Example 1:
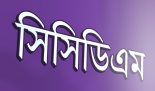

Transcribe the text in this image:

সিসিডিএম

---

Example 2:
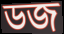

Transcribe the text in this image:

ডজ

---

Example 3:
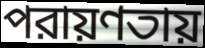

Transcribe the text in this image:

পরায়ণতায়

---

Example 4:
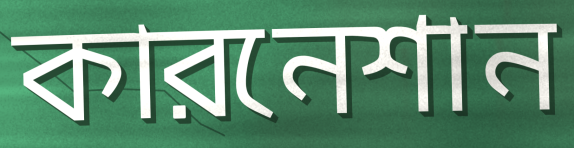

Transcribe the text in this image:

কারনেশান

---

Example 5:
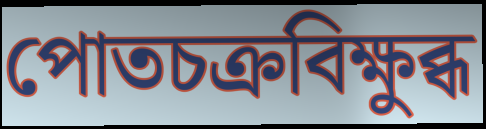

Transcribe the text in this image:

পোতচক্রবিক্ষুব্ধ